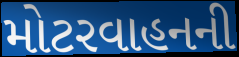
મોટરવાહનની